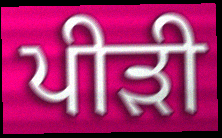
ਪੀੜੀ